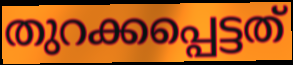
തുറക്കപ്പെട്ടത്